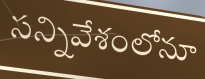
సన్నివేశంలోనూ